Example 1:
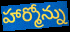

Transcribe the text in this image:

హార్మోన్ను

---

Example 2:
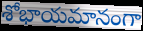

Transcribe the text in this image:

శోభాయమానంగా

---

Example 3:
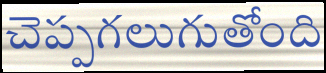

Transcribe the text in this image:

చెప్పగలుగుతోంది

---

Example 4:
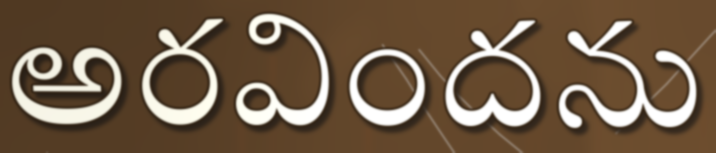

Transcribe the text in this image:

అరవిందను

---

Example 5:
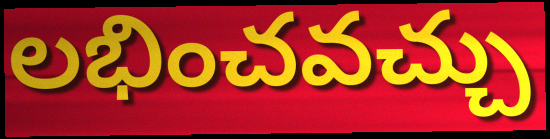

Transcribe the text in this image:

లభించవచ్చు